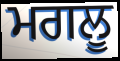
ਮਗਲੂ